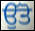
ਉੱਤੋ